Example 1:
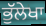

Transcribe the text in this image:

ਭੁੱਲੇਖਾ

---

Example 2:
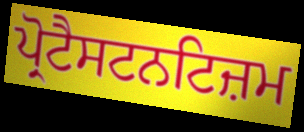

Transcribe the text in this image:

ਪ੍ਰੋਟੈਸਟਨਟਿਜ਼ਮ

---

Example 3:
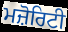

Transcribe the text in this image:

ਮਜ਼ੋਰਿਟੀ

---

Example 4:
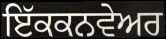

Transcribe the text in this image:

ਇੱਕਕਨਵੇਅਰ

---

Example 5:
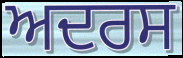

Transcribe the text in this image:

ਅਦਰਸ